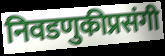
निवडणुकीप्रसंगी